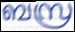
ബസ്ര